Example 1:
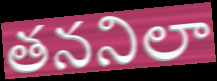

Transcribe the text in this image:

తననిలా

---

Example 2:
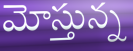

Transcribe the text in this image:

మోస్తున్న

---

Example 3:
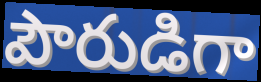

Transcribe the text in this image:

పౌరుడిగా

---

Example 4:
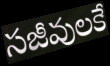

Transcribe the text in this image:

సజీవులకే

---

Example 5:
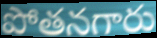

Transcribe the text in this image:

పోతనగారు